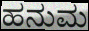
ಹನುಮ